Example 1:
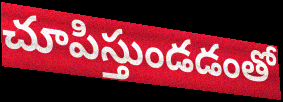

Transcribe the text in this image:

చూపిస్తుండడంతో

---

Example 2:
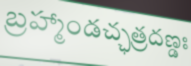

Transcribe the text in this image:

బ్రహ్మాండచ్ఛత్రదణ్డః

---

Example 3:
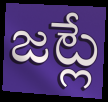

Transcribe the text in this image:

జట్లే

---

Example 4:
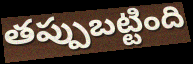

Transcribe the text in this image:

తప్పుబట్టింది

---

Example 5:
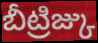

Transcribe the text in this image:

బీట్రిజ్కు